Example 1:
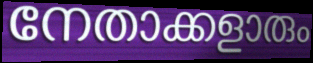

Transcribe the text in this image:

നേതാക്കളാരും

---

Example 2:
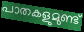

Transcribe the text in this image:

പാതകളുമുണ്ട്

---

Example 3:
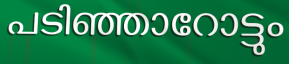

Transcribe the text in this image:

പടിഞ്ഞാറോട്ടും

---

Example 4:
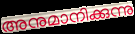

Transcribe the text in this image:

അനുമാനിക്കുന്നു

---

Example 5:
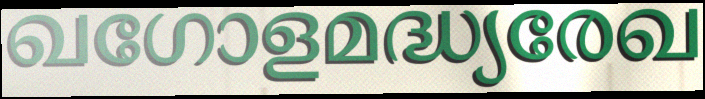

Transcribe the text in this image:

ഖഗോളമദ്ധ്യരേഖ